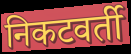
निकटवर्ती